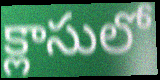
క్లాసులో